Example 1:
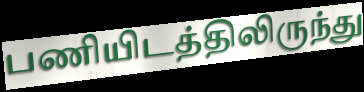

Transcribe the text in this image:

பணியிடத்திலிருந்து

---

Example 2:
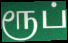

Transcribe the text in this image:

ரூப்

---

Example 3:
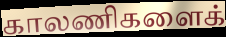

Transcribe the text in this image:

காலணிகளைக்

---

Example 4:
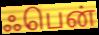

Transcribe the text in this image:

ஃபென்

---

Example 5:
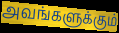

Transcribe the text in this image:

அவங்களுக்கும்